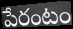
పేరంటం